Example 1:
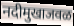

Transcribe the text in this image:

नदीमुखाजवळ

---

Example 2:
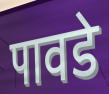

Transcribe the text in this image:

पावडे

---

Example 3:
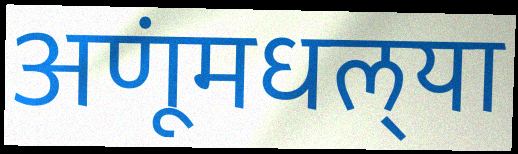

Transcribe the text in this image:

अणूंमधल्या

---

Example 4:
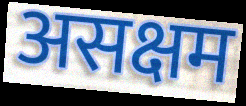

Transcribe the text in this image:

असक्षम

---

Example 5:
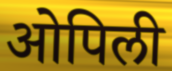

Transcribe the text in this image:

ओपिली